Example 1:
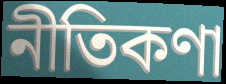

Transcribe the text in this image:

নীতিকণা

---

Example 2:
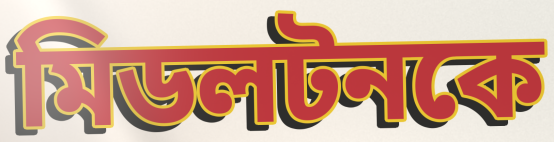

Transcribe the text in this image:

মিডলটনকে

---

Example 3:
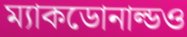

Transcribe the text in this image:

ম্যাকডোনাল্ডও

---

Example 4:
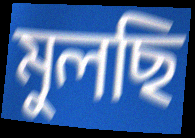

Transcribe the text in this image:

মুলছি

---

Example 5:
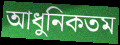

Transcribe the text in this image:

আধুনিকতম